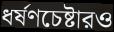
ধর্ষণচেষ্টারও